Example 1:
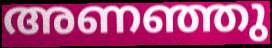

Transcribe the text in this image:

അണഞ്ഞു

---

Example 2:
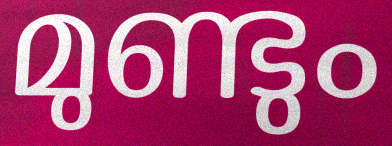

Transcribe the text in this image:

മുണ്ടും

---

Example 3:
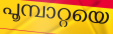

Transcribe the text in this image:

പൂമ്പാറ്റയെ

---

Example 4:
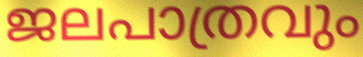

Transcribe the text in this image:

ജലപാത്രവും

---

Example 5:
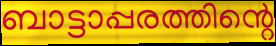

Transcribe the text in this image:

ബാട്ടാപ്പരത്തിന്റെ